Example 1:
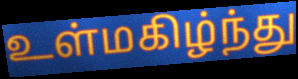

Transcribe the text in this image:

உள்மகிழ்ந்து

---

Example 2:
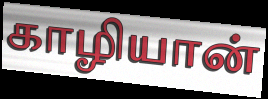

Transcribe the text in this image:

காழியான்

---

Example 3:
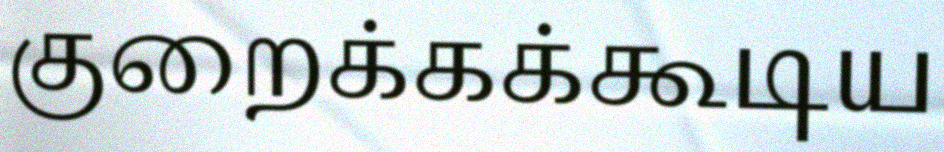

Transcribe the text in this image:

குறைக்கக்கூடிய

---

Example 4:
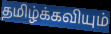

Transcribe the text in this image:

தமிழ்க்கவியும்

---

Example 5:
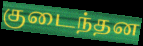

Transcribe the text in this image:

குடைந்தன